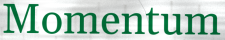
Momentum